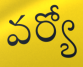
వర్యో